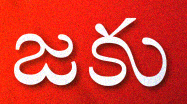
జకు